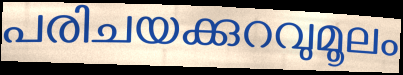
പരിചയക്കുറവുമൂലം